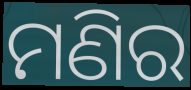
ମଣିର